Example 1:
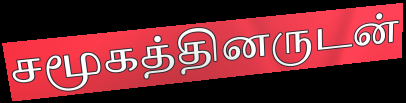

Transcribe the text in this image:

சமூகத்தினருடன்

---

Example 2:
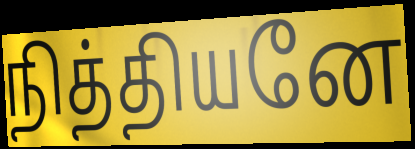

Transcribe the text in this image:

நித்தியனே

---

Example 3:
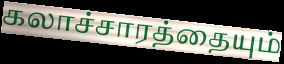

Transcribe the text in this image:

கலாச்சாரத்தையும்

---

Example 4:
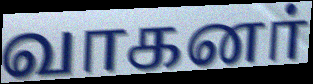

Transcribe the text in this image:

வாகனர்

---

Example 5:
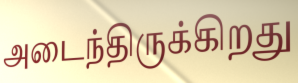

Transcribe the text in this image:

அடைந்திருக்கிறது